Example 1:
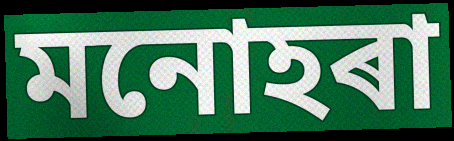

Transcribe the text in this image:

মনোহৰা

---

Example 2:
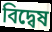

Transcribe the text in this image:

বিদ্বেষ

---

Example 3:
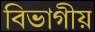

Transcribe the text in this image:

বিভাগীয়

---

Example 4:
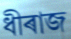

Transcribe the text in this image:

ধীৰাজ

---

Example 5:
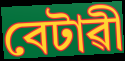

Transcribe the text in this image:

বেটাৱী